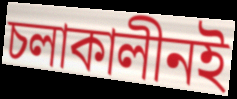
চলাকালীনই